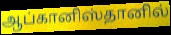
ஆப்கானிஸ்தானில்